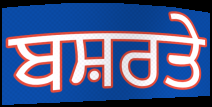
ਬਸ਼ਰਤੇ